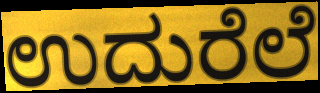
ಉದುರೆಲೆ